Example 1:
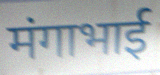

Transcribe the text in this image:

मंगाभाई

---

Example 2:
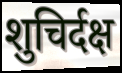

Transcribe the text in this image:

शुचिर्दक्ष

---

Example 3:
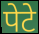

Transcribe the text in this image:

पेटे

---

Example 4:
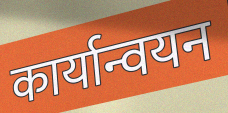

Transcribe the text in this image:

कार्यान्वयन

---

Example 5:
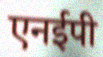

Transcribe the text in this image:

एनईपी